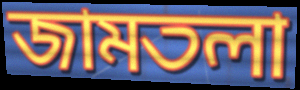
জামতলা